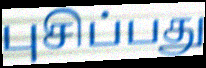
புசிப்பது